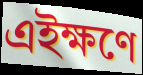
এইক্ষণে